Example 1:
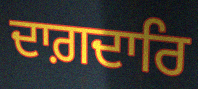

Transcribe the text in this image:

ਦਾਗ਼ਦਾਰਿ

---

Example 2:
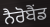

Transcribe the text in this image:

ਨੈਰੋਬੈਂਡ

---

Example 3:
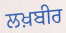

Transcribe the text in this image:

ਲਖ਼ਬੀਰ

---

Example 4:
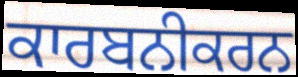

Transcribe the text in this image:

ਕਾਰਬਨੀਕਰਨ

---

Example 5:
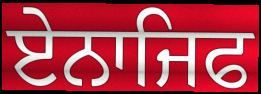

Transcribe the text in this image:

ਏਨਾਜਿਫ